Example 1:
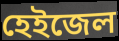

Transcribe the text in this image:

হেইজেল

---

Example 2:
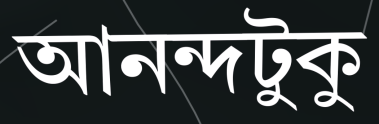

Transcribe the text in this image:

আনন্দটুকু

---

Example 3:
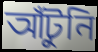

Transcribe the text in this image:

আঁটুনি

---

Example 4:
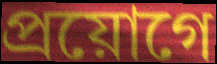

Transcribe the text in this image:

প্রয়োগে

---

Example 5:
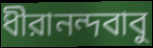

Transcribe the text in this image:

ধীরানন্দবাবু